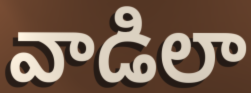
వాడిలా